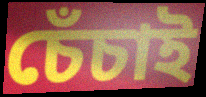
চেঁচাই